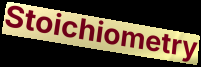
Stoichiometry